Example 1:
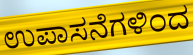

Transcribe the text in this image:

ಉಪಾಸನೆಗಳಿಂದ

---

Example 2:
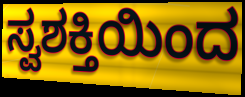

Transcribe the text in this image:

ಸ್ವಶಕ್ತಿಯಿಂದ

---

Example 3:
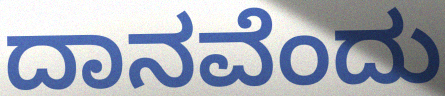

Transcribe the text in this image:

ದಾನವೆಂದು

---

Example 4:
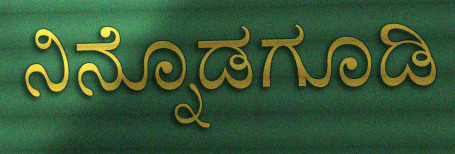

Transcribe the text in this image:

ನಿನ್ನೊಡಗೂಡಿ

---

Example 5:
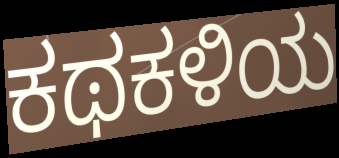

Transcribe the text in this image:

ಕಥಕಳಿಯ